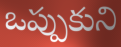
ఒప్పుకుని